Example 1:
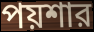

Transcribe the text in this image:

পয়শার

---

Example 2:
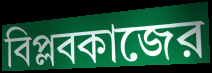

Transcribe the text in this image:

বিপ্লবকাজের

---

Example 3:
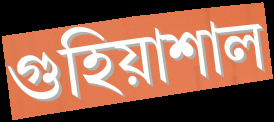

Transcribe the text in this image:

গুহিয়াশাল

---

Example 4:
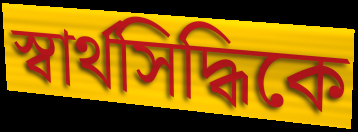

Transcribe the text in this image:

স্বার্থসিদ্ধিকে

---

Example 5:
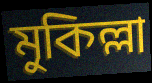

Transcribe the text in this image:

মুকিল্লা